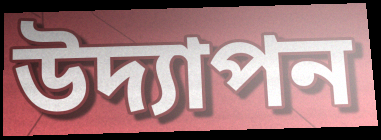
উদ্যাপন